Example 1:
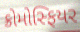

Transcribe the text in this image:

ક્રોમોસ્ફિયર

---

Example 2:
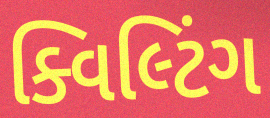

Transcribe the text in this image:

ક્વિલ્ટિંગ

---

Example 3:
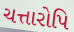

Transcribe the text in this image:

ચત્તારોપિ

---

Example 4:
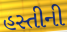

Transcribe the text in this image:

હસ્તીની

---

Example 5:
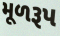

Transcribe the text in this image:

મૂળરૂપ